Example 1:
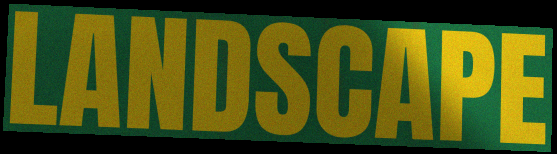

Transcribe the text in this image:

LANDSCAPE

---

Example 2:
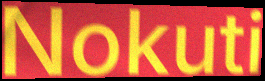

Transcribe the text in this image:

Nokuti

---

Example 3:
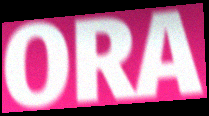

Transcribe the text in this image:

ORA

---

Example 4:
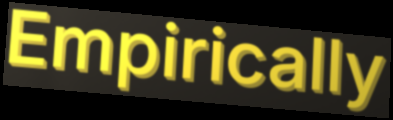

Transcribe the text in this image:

Empirically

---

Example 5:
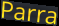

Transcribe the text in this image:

Parra